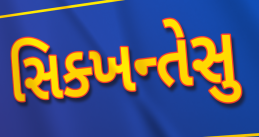
સિક્ખન્તેસુ